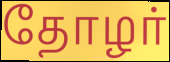
தோழர்